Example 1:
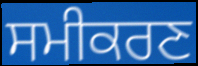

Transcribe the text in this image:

ਸਮੀਕਰਣ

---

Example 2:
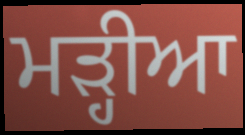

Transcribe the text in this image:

ਮੜ੍ਹੀਆ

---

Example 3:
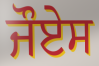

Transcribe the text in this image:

ਜੌਏਸ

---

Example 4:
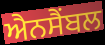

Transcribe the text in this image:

ਐਨਸੈਂਬਲ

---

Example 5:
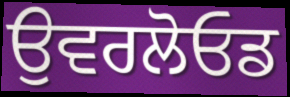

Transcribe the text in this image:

ਉਵਰਲੋਓਡ